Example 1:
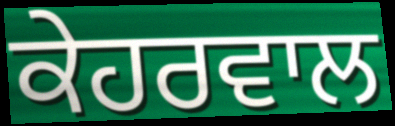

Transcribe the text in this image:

ਕੇਹਰਵਾਲ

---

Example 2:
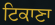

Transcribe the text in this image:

ਟਿਕਾਣਾ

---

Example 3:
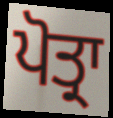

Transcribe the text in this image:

ਪੋਤ੍ਰਾ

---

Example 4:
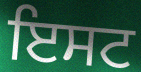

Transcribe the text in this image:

ਇਸਟ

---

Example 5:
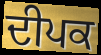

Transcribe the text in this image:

ਦੀਪਕ